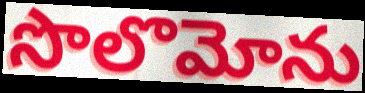
సొలొమోను